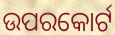
ଉପରକୋର୍ଟ